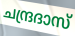
ചന്ദ്രദാസ്